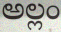
అల్లం